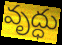
వృద్ధు